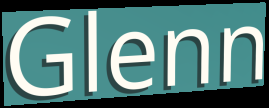
Glenn